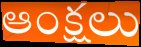
ఆంక్షలు